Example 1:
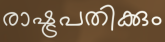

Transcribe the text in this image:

രാഷ്ട്രപതിക്കും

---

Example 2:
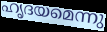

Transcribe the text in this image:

ഹൃദയമെന്നു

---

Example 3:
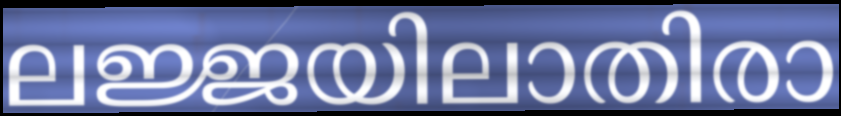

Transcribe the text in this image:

ലജ്ജയിലാതിരാ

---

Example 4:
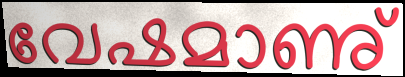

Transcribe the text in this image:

വേഷമാണു്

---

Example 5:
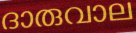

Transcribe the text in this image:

ദാരുവാല